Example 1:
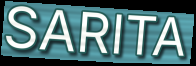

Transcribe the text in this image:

SARITA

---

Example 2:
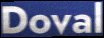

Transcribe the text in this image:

Doval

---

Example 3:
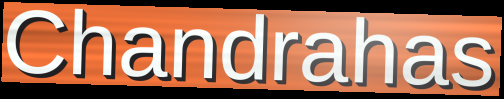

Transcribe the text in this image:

Chandrahas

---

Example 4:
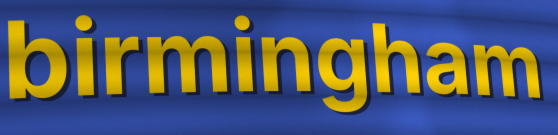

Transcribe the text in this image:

birmingham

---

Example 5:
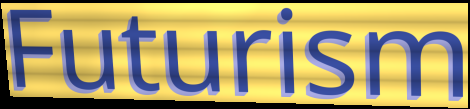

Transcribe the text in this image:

Futurism